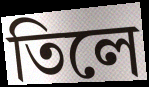
তিলে